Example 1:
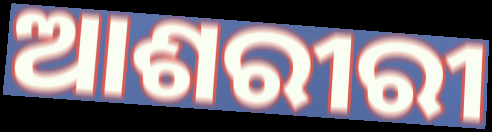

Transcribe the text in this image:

ଆଶରୀରୀ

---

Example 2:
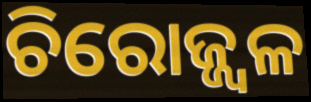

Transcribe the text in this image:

ଚିରୋଜ୍ଜ୍ଵଳ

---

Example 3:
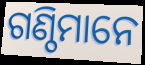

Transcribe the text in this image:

ଗଣ୍ଠିମାନେ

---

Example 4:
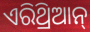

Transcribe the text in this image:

ଏରିଥ୍ରିଆନ୍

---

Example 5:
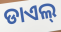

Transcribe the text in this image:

ଡାଏଲ୍